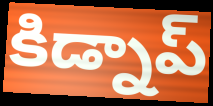
కిడ్నాప్